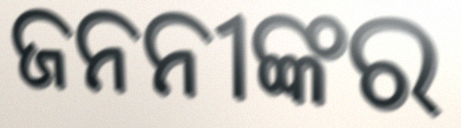
ଜନନୀଙ୍କର